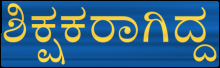
ಶಿಕ್ಷಕರಾಗಿದ್ದ